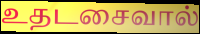
உதடசைவால்